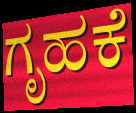
ಗೃಹಕೆ